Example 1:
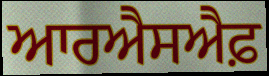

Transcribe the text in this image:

ਆਰਐਸਐਫ਼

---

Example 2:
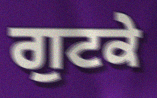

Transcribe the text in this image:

ਗੁਟਕੇ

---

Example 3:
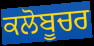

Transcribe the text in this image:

ਕਲੋਬੂਚਰ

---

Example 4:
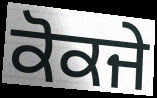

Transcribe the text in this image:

ਕੋਕਜੇ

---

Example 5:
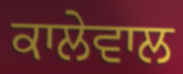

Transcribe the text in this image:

ਕਾਲੇਵਾਲ